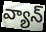
వ్యాన్